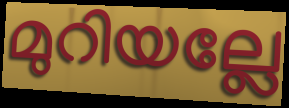
മുറിയല്ലേ